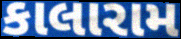
કાલારામ